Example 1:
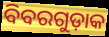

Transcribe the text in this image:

ବିବରଗୁଡ଼ାକ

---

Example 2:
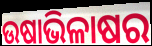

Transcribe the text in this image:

ଉଷାଭିଳାଷର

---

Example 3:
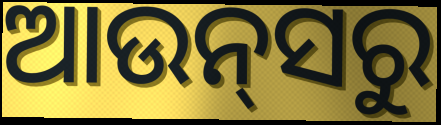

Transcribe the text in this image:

ଆଉନ୍‍ସରୁ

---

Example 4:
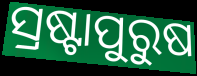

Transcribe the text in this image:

ସ୍ରଷ୍ଟାପୁରୁଷ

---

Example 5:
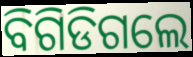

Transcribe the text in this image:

ବିଗିଡିଗଲେ